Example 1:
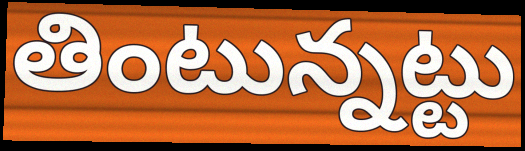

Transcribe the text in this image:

తింటున్నట్టు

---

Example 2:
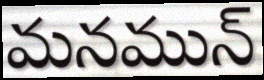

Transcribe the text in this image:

మనమున్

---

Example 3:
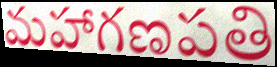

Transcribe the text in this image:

మహాగణపతి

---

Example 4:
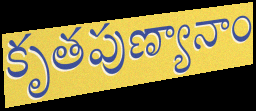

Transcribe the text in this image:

కృతపుణ్యానాం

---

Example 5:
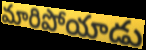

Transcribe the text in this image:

మారిపోయాడు